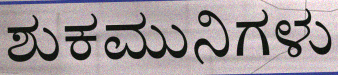
ಶುಕಮುನಿಗಳು